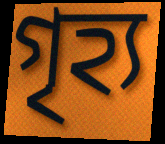
গৃহ্য